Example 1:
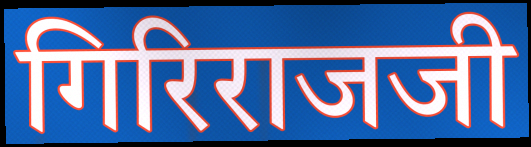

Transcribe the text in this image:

गिरिराजजी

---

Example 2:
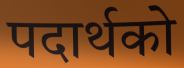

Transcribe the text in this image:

पदार्थको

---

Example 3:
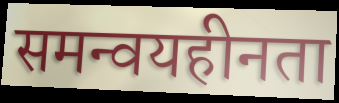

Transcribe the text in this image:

समन्वयहीनता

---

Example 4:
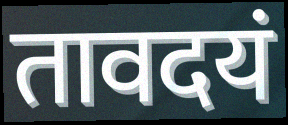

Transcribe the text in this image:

तावदयं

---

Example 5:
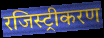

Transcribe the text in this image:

रजिस्‍ट्रीकरण